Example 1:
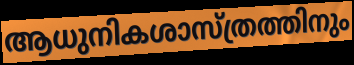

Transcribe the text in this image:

ആധുനികശാസ്ത്രത്തിനും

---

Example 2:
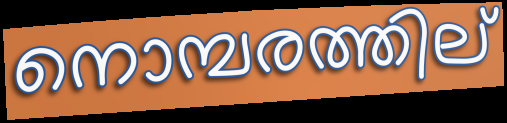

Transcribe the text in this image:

നൊമ്പരത്തില്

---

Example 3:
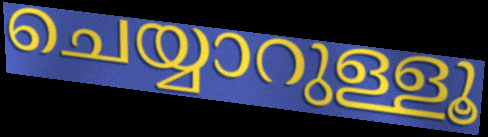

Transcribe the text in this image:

ചെയ്യാറുള്ളൂ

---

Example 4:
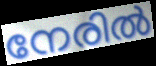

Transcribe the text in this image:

നേരിൽ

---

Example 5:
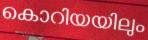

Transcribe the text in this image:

കൊറിയയിലും